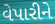
વેપારીને